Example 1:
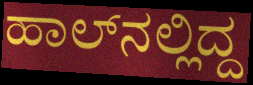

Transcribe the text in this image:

ಹಾಲ್‌ನಲ್ಲಿದ್ದ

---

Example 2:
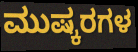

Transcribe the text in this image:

ಮುಷ್ಕರಗಳ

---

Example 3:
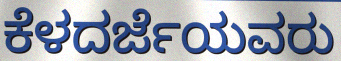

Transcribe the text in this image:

ಕೆಳದರ್ಜೆಯವರು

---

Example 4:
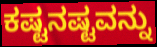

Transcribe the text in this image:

ಕಷ್ಟನಷ್ಟವನ್ನು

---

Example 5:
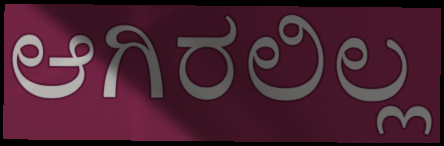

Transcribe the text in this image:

ಆಗಿರಲಿಲ್ಲ